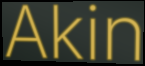
Akin